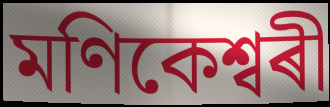
মণিকেশ্বৰী